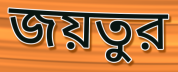
জয়তুর